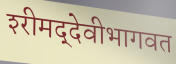
श्रीमद्‌देवीभागवत